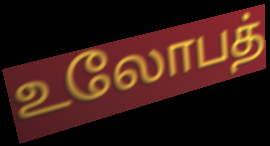
உலோபத்